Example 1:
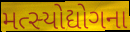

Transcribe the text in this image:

મત્સ્યોદ્યોગના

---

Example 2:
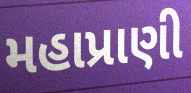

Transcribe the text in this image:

મહાપ્રાણી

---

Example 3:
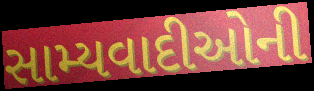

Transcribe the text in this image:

સામ્યવાદીઓની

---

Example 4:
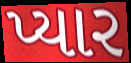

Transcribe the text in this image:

પ્યાર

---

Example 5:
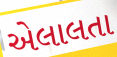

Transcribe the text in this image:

એલાલતા